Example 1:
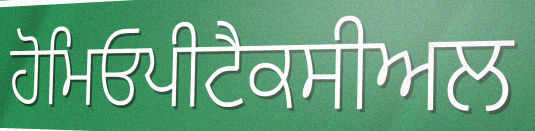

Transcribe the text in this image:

ਹੋਮਿਓਪੀਟੈਕਸੀਅਲ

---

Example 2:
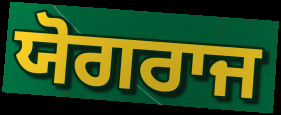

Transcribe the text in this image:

ਯੋਗਰਾਜ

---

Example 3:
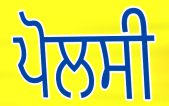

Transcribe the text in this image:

ਪੋਲਸੀ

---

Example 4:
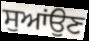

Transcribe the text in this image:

ਸੁਆਂਉਣ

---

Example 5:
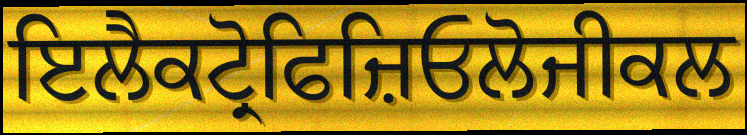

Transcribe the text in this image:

ਇਲੈਕਟ੍ਰੋਫਿਜ਼ਿਓਲੋਜੀਕਲ